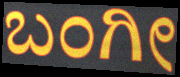
ಬಂಗೀ